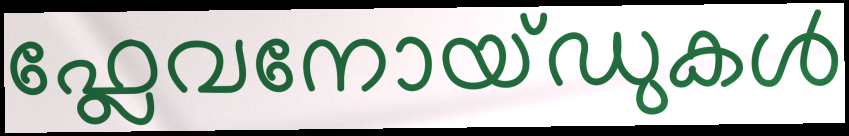
ഫ്ലേവനോയ്ഡുകൾ